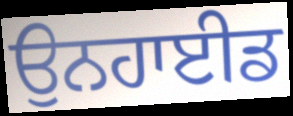
ਉਨਹਾਈਡ